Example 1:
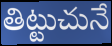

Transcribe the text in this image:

తిట్టుచునే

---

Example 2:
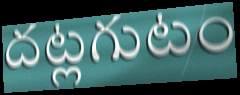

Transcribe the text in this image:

దట్లగుటం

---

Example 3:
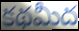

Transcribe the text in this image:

కథమీద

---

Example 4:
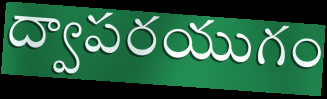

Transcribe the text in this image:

ద్వాపరయుగం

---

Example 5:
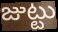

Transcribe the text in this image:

జుట్టు